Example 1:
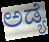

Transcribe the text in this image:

ಅಡ್ಯೆ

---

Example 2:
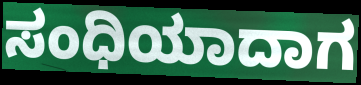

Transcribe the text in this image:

ಸಂಧಿಯಾದಾಗ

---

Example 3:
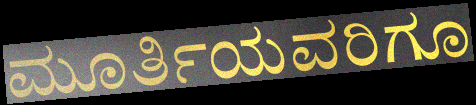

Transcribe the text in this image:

ಮೂರ್ತಿಯವರಿಗೂ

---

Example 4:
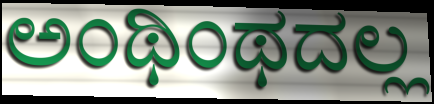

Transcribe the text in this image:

ಅಂಥಿಂಥದಲ್ಲ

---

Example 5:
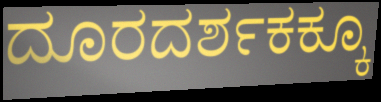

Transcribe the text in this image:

ದೂರದರ್ಶಕಕ್ಕೂ